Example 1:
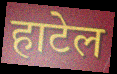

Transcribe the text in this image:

हाटेल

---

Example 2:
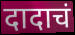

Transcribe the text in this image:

दादाचं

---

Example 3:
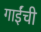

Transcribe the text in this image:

गाईंची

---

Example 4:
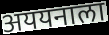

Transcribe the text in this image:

अययनाला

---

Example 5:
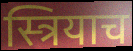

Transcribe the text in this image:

स्त्रियाच